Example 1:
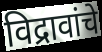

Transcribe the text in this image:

विद्रावांचे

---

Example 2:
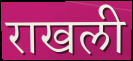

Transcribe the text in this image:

राखली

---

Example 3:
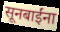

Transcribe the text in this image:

सूनबाईंना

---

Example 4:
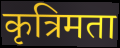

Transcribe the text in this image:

कृत्रिमता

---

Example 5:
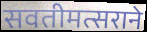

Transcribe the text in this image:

सवतीमत्सराने